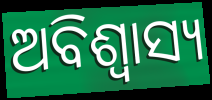
ଅବିଶ୍ୱାସ୍ୟ